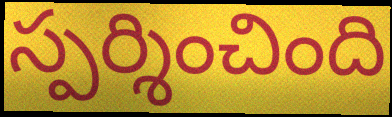
స్పర్శించింది